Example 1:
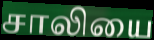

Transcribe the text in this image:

சாலியை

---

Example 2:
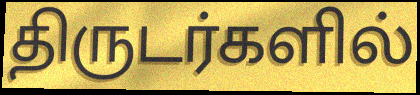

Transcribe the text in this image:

திருடர்களில்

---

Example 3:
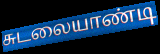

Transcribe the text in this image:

சுடலையாண்டி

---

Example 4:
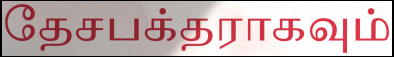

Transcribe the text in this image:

தேசபக்தராகவும்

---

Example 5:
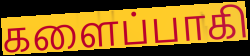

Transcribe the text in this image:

களைப்பாகி